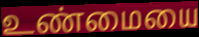
உண்மையை